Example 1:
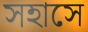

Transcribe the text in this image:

সহাসে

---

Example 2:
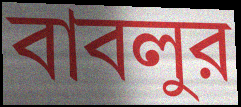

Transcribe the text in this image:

বাবলুর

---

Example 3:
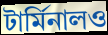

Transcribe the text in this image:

টার্মিনালও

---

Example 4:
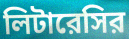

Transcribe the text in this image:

লিটারেসির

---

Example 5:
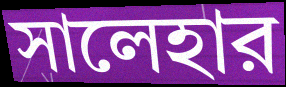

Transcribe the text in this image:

সালেহার